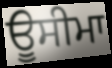
ਊਸੀਮਾ